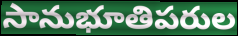
సానుభూతిపరుల